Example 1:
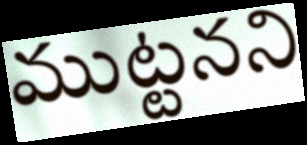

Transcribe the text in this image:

ముట్టనని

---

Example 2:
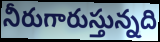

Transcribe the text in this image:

నీరుగారుస్తున్నది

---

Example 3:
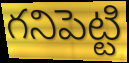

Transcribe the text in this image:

గనిపెట్టి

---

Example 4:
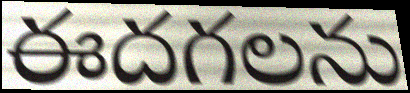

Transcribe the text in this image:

ఈదగలను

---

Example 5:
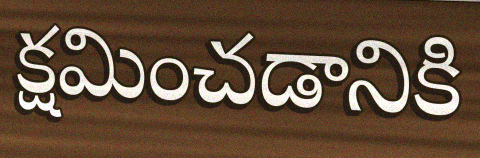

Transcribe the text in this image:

క్షమించడానికి